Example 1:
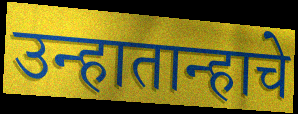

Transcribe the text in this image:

उन्हातान्हाचे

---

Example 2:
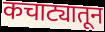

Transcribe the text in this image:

कचाट्यातून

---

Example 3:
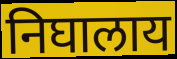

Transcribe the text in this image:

निघालाय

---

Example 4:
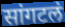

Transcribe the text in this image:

सांगटलं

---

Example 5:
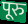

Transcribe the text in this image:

पूरु